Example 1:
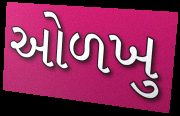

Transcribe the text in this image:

ઓળખુ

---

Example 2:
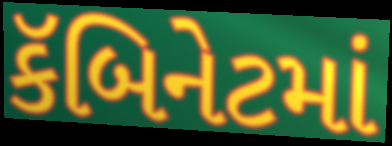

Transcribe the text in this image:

કૅબિનેટમાં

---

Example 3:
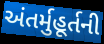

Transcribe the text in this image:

અંતર્મુહૂર્તની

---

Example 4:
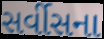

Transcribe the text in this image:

સર્વીસના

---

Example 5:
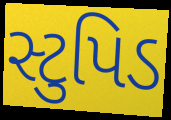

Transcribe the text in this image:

સ્ટુપિડ